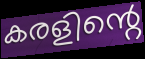
കരളിന്റെ